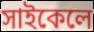
সাইকেলে